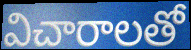
విచారాలతో